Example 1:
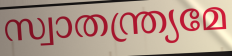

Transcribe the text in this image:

സ്വാതന്ത്ര്യമേ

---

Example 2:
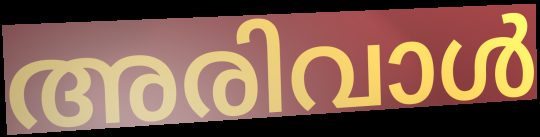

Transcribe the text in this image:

അരിവാൾ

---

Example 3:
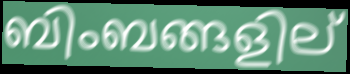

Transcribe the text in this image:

ബിംബങ്ങളില്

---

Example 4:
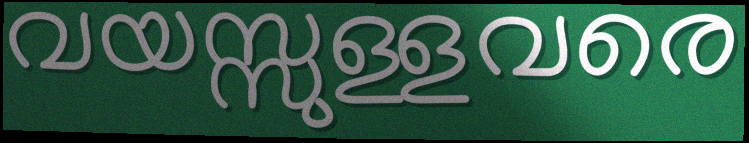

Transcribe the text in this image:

വയസ്സുള്ളവരെ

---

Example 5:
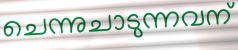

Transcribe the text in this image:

ചെന്നുചാടുന്നവന്